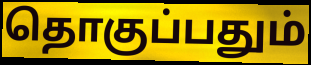
தொகுப்பதும்